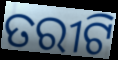
ତରୀଟି